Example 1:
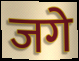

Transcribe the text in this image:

जगे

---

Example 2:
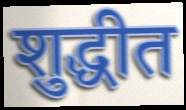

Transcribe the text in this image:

शुद्धीत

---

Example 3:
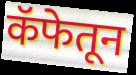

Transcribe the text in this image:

कॅफेतून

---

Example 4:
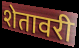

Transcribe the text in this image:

शेतावरी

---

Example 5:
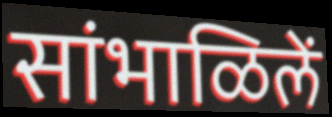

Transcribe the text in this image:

सांभाळिलें